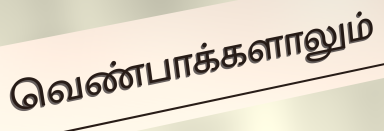
வெண்பாக்களாலும்